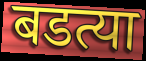
बडत्या